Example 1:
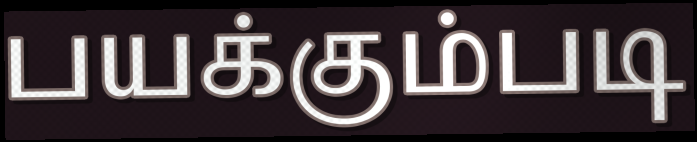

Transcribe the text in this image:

பயக்கும்படி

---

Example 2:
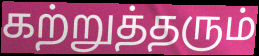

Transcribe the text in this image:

கற்றுத்தரும்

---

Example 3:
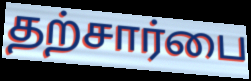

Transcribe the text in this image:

தற்சார்பை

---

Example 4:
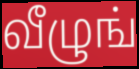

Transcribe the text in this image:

வீழுங்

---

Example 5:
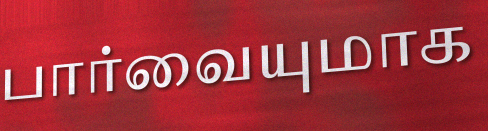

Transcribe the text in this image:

பார்வையுமாக